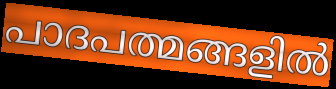
പാദപത്മങ്ങളിൽ